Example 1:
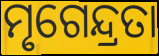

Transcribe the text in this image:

ମୃଗେନ୍ଦ୍ରତା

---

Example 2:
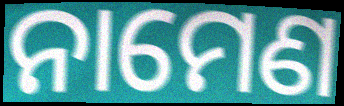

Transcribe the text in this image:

ନାମେଣ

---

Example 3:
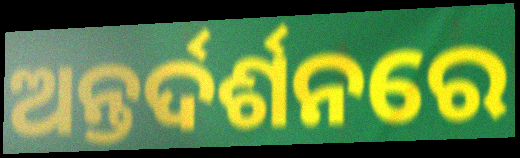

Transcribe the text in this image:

ଅନ୍ତର୍ଦର୍ଶନରେ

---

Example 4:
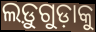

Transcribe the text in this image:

ଲଡ଼ୁଗୁଡ଼ାକୁ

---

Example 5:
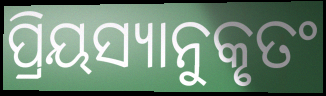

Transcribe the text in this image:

ପ୍ରିୟସ୍ୟାନୁକୃତଂ